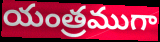
యంత్రముగా